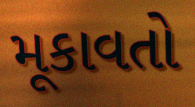
મૂકાવતો